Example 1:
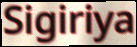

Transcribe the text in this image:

Sigiriya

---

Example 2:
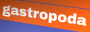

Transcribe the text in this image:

gastropoda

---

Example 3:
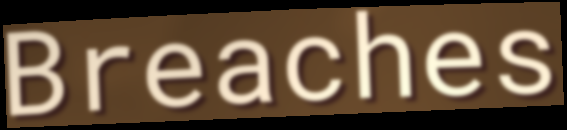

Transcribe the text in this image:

Breaches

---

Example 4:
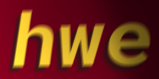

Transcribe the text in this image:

hwe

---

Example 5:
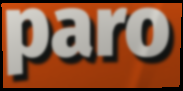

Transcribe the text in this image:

paro